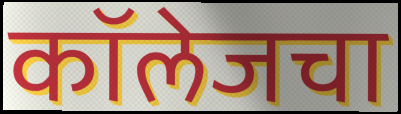
कॉलेजचा